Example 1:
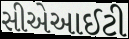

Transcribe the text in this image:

સીએઆઈટી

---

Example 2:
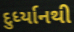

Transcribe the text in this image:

દુર્ધ્યાનથી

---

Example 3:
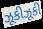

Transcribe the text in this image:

ઝૂકીઝૂકી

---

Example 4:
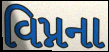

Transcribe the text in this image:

વિપ્નના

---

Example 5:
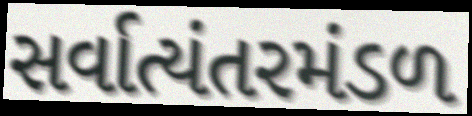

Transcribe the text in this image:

સર્વાત્યંતરમંડળ